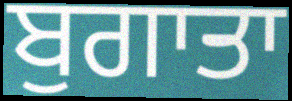
ਬੁਗਾਤਾ